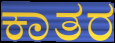
ಕಾತರ